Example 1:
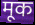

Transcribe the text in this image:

मूक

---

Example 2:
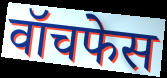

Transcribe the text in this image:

वॉचफेस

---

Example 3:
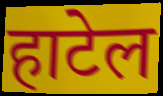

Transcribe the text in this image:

हाटेल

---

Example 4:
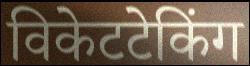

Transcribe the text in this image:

विकेटटेकिंग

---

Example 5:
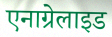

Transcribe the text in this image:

एनाग्रेलाइड